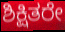
ಶಿಕ್ಷಿತರೇ